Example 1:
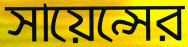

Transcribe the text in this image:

সায়েন্সের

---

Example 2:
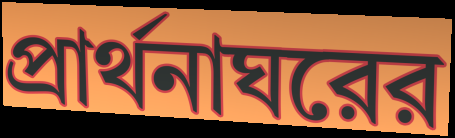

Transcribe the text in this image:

প্রার্থনাঘরের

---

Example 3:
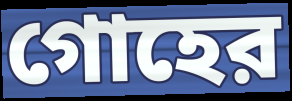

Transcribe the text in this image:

গোহের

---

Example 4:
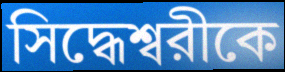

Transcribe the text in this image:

সিদ্ধেশ্বরীকে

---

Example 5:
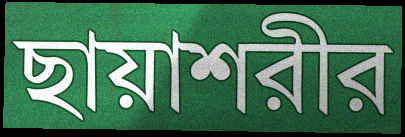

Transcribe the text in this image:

ছায়াশরীর